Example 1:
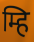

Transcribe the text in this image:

म्हि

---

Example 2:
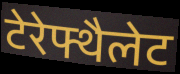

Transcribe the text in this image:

टेरेफ्थैलेट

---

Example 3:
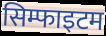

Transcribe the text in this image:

सिम्फाइटम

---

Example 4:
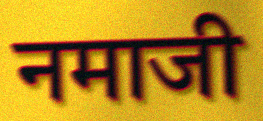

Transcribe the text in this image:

नमाजी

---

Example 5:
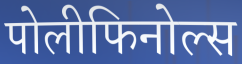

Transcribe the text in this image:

पोलीफिनोल्स